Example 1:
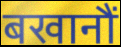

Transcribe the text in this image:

बखानौं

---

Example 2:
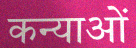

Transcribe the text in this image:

कन्‍याओं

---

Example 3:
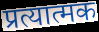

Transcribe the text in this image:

प्रत्यात्मक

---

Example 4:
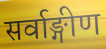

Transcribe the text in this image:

सर्वाङ्गीण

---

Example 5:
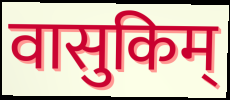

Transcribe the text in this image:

वासुकिम्